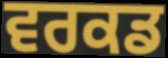
ਵਰਕਡ